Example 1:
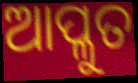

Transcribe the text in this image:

ଆପ୍ଳୁତ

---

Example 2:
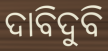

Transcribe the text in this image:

ଦାବିଦୁବି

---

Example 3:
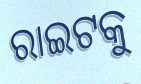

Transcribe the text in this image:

ରାଇଟକୁ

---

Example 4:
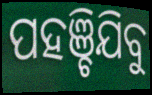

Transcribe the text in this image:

ପହଞ୍ଚିଯିବୁ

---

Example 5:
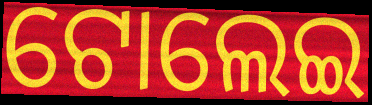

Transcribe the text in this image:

ଟୋଲେଇ